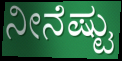
ನೀನೆಷ್ಟು